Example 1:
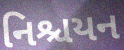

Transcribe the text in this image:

નિશ્ચયન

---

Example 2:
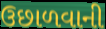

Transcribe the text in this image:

ઉછાળવાની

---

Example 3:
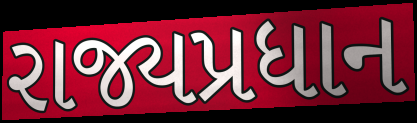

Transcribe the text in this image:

રાજ્યપ્રધાન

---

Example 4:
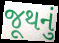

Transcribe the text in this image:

જૂથનું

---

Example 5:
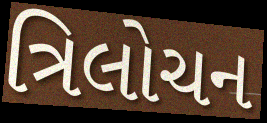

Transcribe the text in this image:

ત્રિલોચન